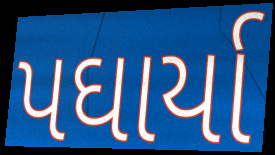
પઘાર્યા